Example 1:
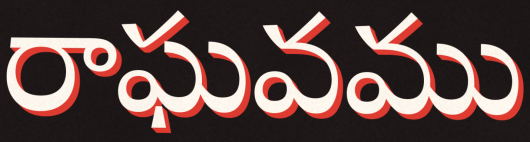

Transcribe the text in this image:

రాఘవము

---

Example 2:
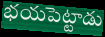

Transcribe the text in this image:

భయపెట్టాడు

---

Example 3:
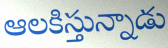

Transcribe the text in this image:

ఆలకిస్తున్నాడు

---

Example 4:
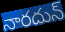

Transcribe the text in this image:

నారదున్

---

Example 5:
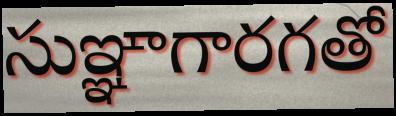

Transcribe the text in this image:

సుఞ్ఞాగారగతో